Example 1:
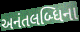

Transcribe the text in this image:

અનંતલબ્ધિના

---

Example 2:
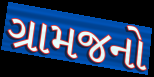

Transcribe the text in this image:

ગ્રામજનો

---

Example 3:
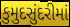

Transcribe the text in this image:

કુમુદસુંદરીમાં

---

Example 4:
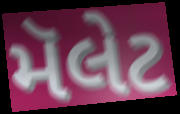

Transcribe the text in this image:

મૅલેટ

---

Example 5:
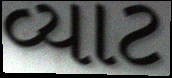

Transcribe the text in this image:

વ્યાટ